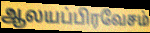
ஆலயப்பிரவேசம்